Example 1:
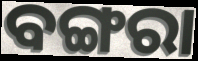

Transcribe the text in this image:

ବଙ୍ଗରା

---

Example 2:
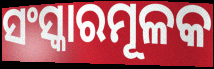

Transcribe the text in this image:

ସଂସ୍କାରମୂଳକ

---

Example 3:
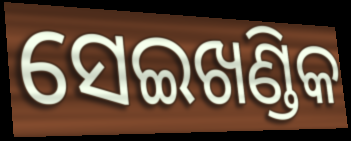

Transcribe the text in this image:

ସେଇଖଣ୍ଡିକ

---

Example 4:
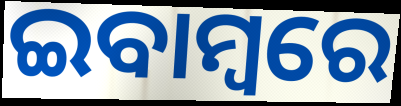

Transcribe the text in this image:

ଇବାମ୍ବରେ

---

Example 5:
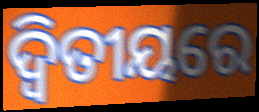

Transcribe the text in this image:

ଦ୍ୱିତୀୟରେ